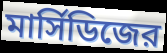
মার্সিডিজের